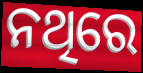
ନଥିରେ